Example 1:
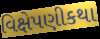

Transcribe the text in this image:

વિક્ષેપણીકથા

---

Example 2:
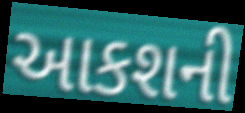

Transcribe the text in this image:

આકશની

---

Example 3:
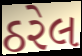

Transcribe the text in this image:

ઠરેલ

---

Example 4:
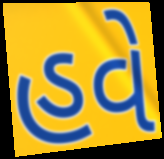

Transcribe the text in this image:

હવે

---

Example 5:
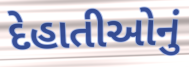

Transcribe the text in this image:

દેહાતીઓનું